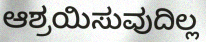
ಆಶ್ರಯಿಸುವುದಿಲ್ಲ